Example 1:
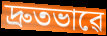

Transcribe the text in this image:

দ্ৰুতভাৱে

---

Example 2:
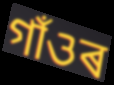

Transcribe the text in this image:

গাঁওৰ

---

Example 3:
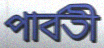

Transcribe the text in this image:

পাৰ্বতী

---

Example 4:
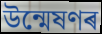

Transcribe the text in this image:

উন্মেষণৰ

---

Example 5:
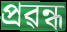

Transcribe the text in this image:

প্ৰৱন্ধ